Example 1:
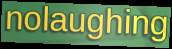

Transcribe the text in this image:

nolaughing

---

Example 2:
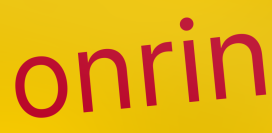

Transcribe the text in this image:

onrin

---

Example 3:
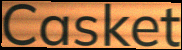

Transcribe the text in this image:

Casket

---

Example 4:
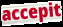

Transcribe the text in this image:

accepit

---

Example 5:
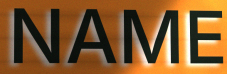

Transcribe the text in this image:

NAME